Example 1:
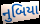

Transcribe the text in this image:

નુબિયા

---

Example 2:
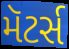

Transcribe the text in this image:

મૅટર્સ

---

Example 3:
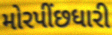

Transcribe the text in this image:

મોરપીંછધારી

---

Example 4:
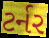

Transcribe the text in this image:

ટર્નર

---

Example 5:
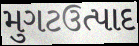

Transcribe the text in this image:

મુગટઉત્પાદ